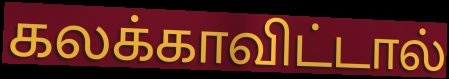
கலக்காவிட்டால்